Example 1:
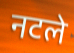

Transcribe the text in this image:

नटले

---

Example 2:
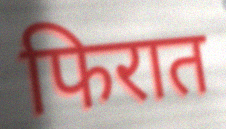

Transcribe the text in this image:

फिरात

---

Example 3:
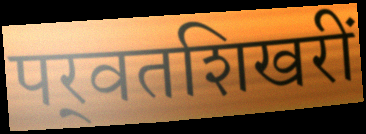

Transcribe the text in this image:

पर्वतशिखरीं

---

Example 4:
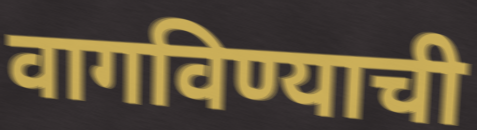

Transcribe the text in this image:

वागविण्याची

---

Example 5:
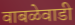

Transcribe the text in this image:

वाबळेवाडी